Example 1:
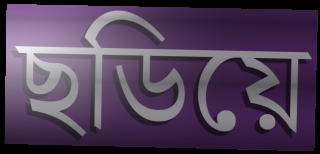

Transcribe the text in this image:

ছডিয়ে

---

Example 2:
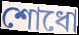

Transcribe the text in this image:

শোধো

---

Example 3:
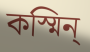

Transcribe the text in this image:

কস্মিন্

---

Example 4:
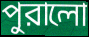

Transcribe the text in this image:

পুরালো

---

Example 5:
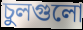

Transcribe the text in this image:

চুলগুলো